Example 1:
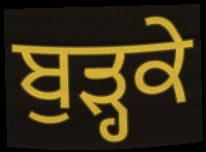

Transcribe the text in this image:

ਬੁੜ੍ਹਕੇ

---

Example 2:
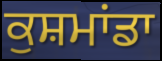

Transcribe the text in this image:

ਕੁਸ਼ਮਾਂਡਾ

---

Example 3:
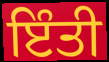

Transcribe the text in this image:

ਇੰਤੀ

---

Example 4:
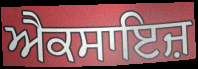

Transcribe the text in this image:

ਐਕਸਾਇਜ਼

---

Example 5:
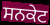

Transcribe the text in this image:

ਸਨਕੇਟ